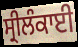
ਸ੍ਰੀਲੰਕਾਈ